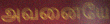
அவனையே